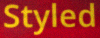
Styled